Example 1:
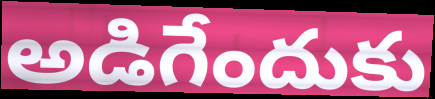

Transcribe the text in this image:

అడిగేందుకు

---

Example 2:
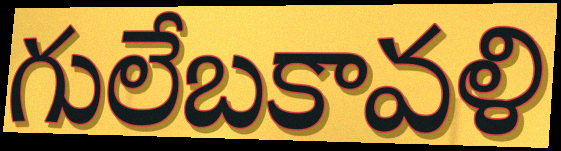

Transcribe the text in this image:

గులేబకావళి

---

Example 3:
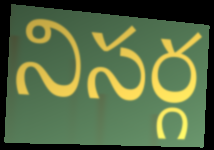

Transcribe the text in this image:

నిసర్గ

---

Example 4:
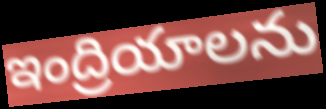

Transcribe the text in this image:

ఇంద్రియాలను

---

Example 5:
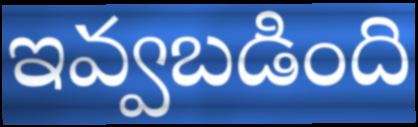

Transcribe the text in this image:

ఇవ్వబడింది